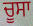
ਚੂਸਾ